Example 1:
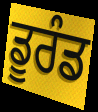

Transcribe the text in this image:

ਡੂਰੰਡ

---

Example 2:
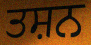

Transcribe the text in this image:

ਤਸ਼ਨ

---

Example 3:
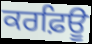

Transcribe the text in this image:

ਕਰਫ਼ਿਊ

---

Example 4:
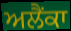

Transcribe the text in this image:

ਅਲੈਂਕਾ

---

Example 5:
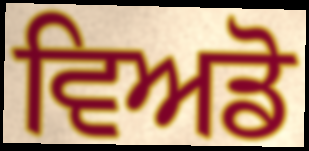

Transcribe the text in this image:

ਵਿਅਡੋ